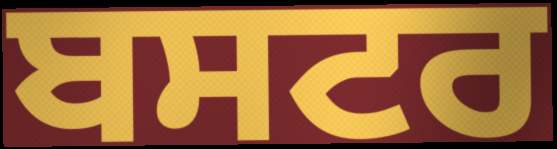
ਬਸਟਰ